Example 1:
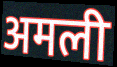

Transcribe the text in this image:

अमली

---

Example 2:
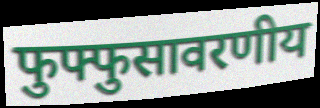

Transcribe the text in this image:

फुफ्फुसावरणीय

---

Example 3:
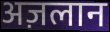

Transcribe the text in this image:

अज़लान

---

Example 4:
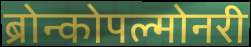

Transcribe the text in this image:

ब्रोन्कोपल्मोनरी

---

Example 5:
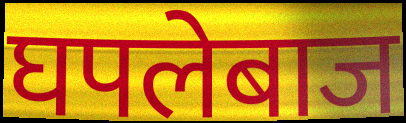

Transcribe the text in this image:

घपलेबाज